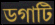
ডগাটি